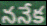
ననేక